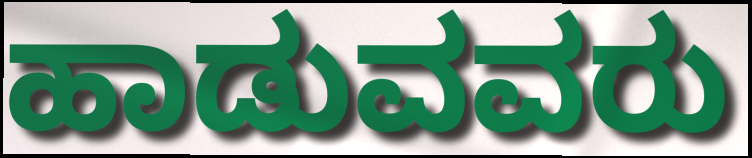
ಹಾಡುವವರು